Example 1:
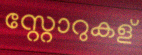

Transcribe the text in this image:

സ്റ്റോറുകള്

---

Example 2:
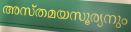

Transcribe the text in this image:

അസ്തമയസൂര്യനും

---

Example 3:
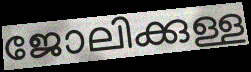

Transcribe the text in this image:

ജോലിക്കുള്ള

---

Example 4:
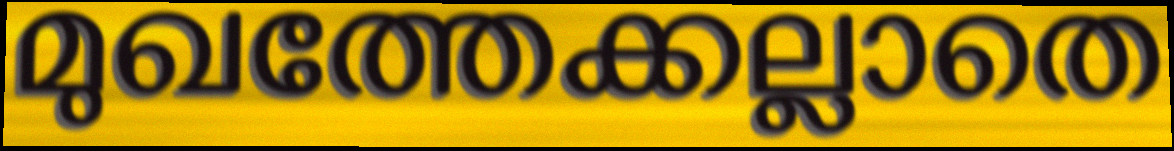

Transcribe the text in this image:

മുഖത്തേക്കല്ലാതെ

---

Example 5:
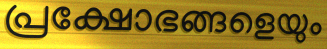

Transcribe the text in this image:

പ്രക്ഷോഭങ്ങളെയും